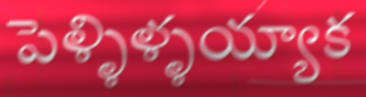
పెళ్ళిళ్ళయ్యాక